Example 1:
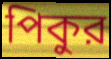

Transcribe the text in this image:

পিকুর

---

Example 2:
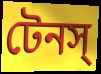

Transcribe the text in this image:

টেনস্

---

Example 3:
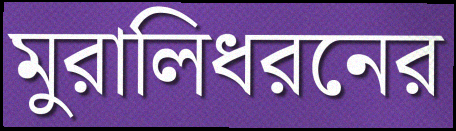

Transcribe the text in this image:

মুরালিধরনের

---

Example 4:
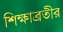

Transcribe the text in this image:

শিক্ষাব্রতীর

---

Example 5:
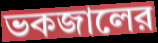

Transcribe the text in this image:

ভকজালের